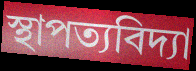
স্থাপত্যবিদ্যা